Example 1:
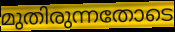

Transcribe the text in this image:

മുതിരുന്നതോടെ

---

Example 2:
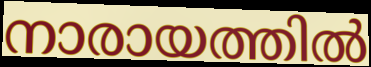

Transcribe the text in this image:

നാരായത്തിൽ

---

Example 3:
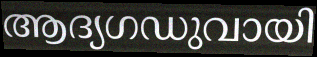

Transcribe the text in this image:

ആദ്യഗഡുവായി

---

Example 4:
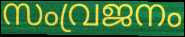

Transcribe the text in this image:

സംവ്രജനം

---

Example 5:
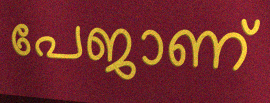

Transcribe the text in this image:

പേജാണ്